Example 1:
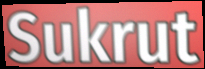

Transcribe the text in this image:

Sukrut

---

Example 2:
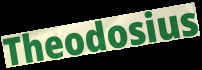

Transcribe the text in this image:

Theodosius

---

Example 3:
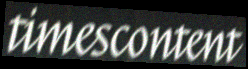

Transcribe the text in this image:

timescontent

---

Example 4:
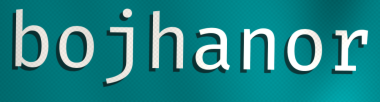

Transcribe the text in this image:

bojhanor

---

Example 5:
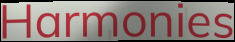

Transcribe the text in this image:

Harmonies